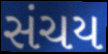
સંચય